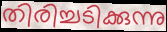
തിരിച്ചടിക്കുന്നു